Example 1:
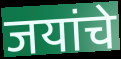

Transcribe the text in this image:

जयांचे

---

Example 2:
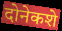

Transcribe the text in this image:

दोनेकशे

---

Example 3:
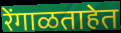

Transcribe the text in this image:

रेंगाळताहेत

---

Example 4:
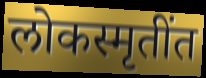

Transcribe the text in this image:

लोकस्मृतींत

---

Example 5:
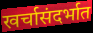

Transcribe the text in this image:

खर्चासंदर्भात